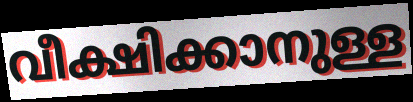
വീക്ഷിക്കാനുള്ള